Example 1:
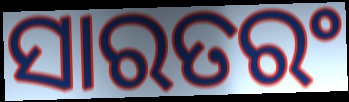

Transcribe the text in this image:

ସାରତରଂ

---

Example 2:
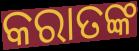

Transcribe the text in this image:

କରାତଙ୍କ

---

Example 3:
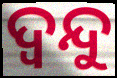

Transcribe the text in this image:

ଦ୍ଵନ୍ଦୁ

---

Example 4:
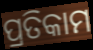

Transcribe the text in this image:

ପ୍ରତିକାମ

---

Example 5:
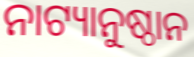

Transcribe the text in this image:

ନାଟ୍ୟାନୁଷ୍ଠାନ